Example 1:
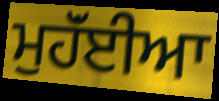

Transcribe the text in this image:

ਮੁਹੱਂਈਆ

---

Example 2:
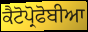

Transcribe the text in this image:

ਕੈਟੋਪ੍ਰੋਫੋਬੀਆ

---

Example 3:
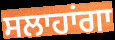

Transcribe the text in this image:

ਸਲਾਹਾਂਗਾ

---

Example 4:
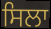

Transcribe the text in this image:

ਸਿਲਾ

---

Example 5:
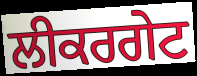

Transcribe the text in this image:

ਲੀਕਰਗੇਟ